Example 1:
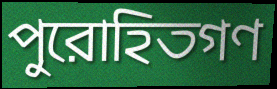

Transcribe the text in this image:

পুরোহিতগণ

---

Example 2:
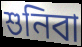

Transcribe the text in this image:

শুনিবা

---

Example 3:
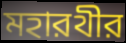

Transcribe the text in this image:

মহারথীর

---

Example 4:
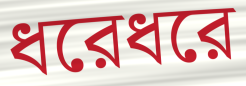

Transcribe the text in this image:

ধরেধরে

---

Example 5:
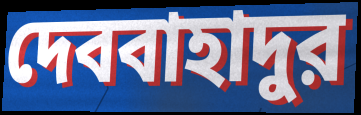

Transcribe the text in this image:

দেববাহাদুর